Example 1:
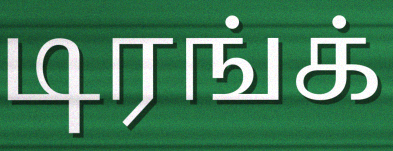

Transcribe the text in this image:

டிரங்க்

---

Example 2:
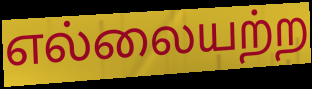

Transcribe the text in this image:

எல்லையற்ற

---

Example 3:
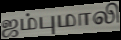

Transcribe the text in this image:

ஜம்புமாலி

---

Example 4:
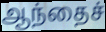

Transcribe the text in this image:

ஆந்தைச்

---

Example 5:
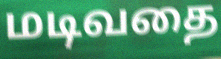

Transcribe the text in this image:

மடிவதை